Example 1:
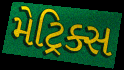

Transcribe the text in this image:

મેટ્રિક્સ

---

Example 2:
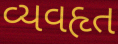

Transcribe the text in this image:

વ્યવહૃત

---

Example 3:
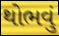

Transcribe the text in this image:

થોભવું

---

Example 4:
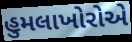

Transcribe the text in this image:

હુમલાખોરોએ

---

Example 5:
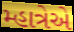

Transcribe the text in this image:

મ્હાત્રેએ